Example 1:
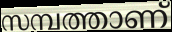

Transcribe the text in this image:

സമ്പത്താണ്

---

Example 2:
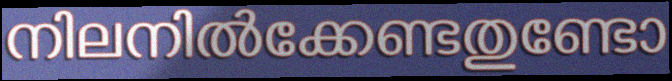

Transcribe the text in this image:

നിലനിൽക്കേണ്ടതുണ്ടോ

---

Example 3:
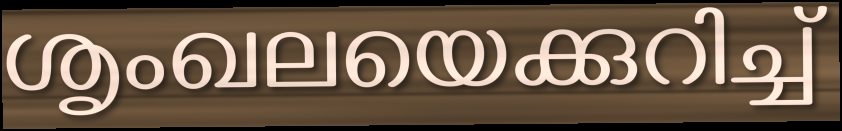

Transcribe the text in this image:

ശൃംഖലയെക്കുറിച്ച്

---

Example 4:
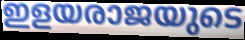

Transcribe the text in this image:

ഇളയരാജയുടെ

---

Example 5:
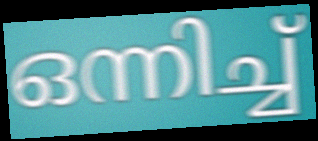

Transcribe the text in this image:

ഒന്നിച്ച്